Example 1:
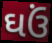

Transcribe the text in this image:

ઘઉં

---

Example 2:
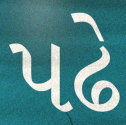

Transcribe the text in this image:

પઢે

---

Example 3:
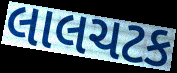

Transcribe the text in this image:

લાલચટક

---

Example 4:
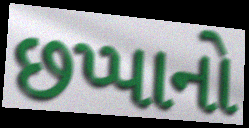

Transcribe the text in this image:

છપ્પાનો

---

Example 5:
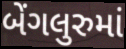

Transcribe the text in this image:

બેંગલુરુમાં